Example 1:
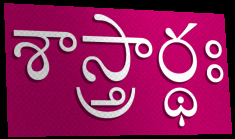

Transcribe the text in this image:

శాస్త్రార్థః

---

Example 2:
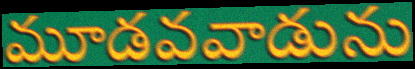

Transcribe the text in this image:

మూడవవాడును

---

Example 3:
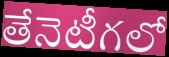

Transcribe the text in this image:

తేనెటీగలో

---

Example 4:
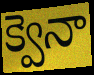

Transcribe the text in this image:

క్వెనా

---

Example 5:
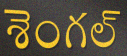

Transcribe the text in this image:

శెంగల్